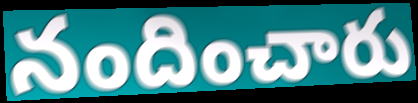
నందించారు